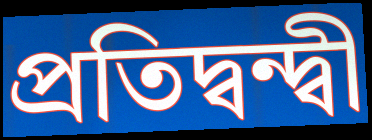
প্ৰতিদ্বন্দ্বী